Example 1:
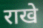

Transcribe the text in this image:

राखे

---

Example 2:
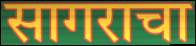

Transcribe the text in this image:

सागराचा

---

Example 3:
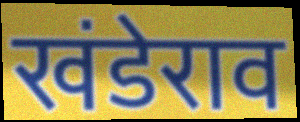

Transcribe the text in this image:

खंडेराव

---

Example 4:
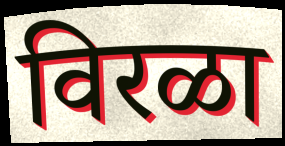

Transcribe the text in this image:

विरळा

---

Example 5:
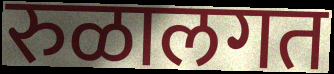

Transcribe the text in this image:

रुळालगत